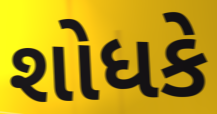
શોધકે